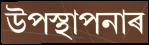
উপস্থাপনাৰ